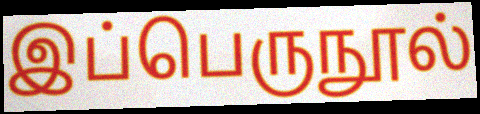
இப்பெருநூல்